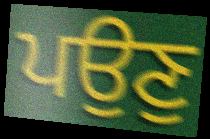
ਪਉਣੁ